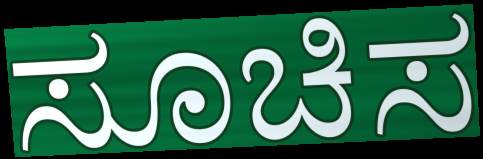
ಸೂಚಿಸ